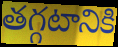
తగ్గటానికి